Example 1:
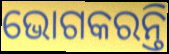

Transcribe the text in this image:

ଭୋଗକରନ୍ତି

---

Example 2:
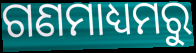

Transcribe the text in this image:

ଗଣମାଧ୍ୟମରୁ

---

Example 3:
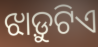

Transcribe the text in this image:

ଝାଡ଼ୁଟିଏ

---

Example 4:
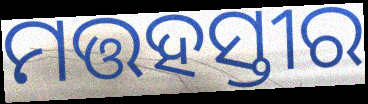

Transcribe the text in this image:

ମତ୍ତହସ୍ତୀର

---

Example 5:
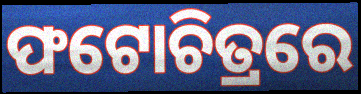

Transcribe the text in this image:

ଫଟୋଚିତ୍ରରେ